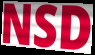
NSD